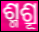
ଶ୍ମଶ୍ରୂ